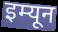
इम्यून